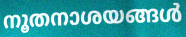
നൂതനാശയങ്ങൾ